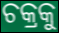
ଚକ୍ରକୁ